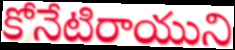
కోనేటిరాయుని